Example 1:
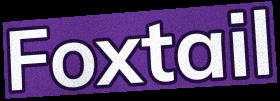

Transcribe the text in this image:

Foxtail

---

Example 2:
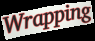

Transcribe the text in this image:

Wrapping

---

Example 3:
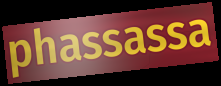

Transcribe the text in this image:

phassassa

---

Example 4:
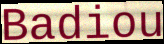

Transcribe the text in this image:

Badiou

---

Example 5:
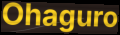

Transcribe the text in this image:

Ohaguro